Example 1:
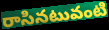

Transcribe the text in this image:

రాసినటువంటి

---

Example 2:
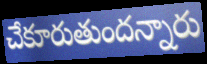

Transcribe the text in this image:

చేకూరుతుందన్నారు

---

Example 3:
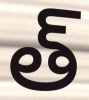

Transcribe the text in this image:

త్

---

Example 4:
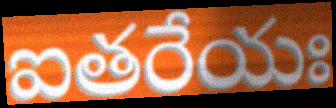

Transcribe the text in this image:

ఐతరేయః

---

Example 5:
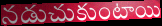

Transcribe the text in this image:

నడుచుకుంటాయి